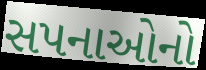
સપનાઓનો